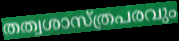
തത്വശാസ്ത്രപരവും